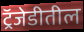
ट्रॅजेडीतील